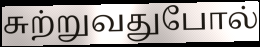
சுற்றுவதுபோல்